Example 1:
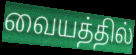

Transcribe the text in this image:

வையத்தில்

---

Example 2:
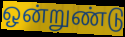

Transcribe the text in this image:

ஒன்றுண்டு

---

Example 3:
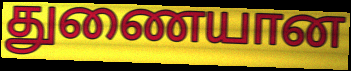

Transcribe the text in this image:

துணையான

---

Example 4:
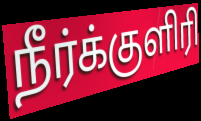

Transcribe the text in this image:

நீர்க்குளிரி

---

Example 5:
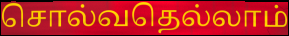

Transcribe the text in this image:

சொல்வதெல்லாம்